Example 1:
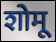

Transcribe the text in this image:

शोमू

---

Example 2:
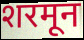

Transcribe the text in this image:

शरमून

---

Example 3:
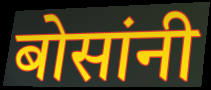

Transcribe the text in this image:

बोसांनी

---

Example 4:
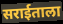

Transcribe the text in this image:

सराईताला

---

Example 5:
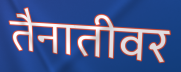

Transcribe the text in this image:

तैनातीवर